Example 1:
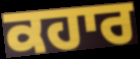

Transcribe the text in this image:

ਕਹਾਰ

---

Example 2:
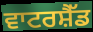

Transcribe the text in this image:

ਵਾਟਰਸ਼ੈੱਡ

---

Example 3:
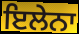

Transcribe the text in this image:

ਇਲੇਨਾ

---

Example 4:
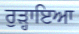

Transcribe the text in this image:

ਰੁੜ੍ਹਾਇਆ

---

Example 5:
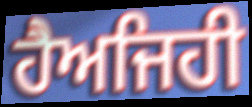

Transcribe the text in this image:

ਹੈਅਜਿਹੀ